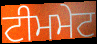
ਟੀਮਮੇਟ